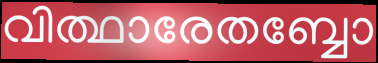
വിത്ഥാരേതബ്ബോ